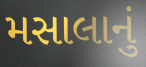
મસાલાનું